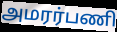
அமரர்பணி